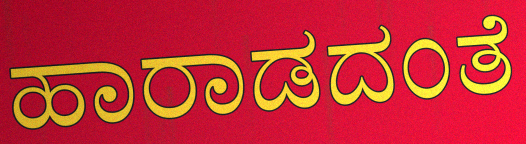
ಹಾರಾಡದಂತೆ